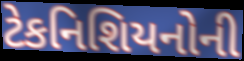
ટેકનિશિયનોની